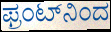
ಫ್ರಂಟ್‌ನಿಂದ